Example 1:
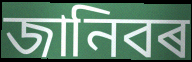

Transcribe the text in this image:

জানিবৰ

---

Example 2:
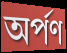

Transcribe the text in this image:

অৰ্পণ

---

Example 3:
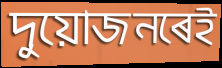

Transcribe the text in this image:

দুয়োজনৰেই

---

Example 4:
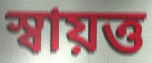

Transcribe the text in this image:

স্বায়ত্ত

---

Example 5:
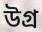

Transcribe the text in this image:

উগ্ৰ